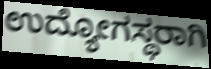
ಉದ್ಯೋಗಸ್ಥರಾಗಿ